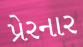
પ્રેરનાર